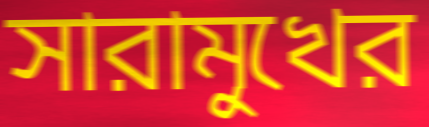
সারামুখের